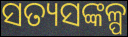
ସତ୍ୟସଙ୍କଳ୍ପ